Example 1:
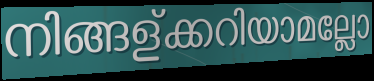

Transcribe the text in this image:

നിങ്ങള്ക്കറിയാമല്ലോ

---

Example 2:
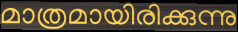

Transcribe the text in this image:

മാത്രമായിരിക്കുന്നു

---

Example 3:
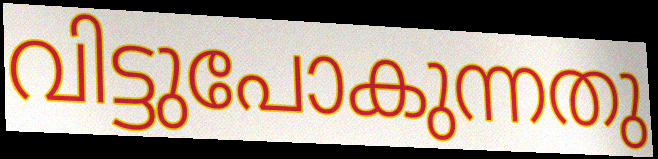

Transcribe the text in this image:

വിട്ടുപോകുന്നതു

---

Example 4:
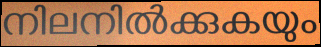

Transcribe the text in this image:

നിലനിൽക്കുകയും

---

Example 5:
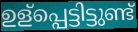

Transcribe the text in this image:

ഉള്പ്പെട്ടിട്ടുണ്ട്